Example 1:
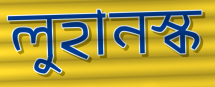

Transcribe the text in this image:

লুহানস্ক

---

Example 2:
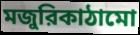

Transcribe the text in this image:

মজুরিকাঠামো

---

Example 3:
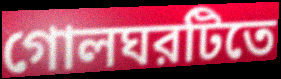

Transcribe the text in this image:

গোলঘরটিতে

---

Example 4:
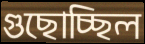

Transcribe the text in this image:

গুছোচ্ছিল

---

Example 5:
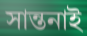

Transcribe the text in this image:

সান্তনাই